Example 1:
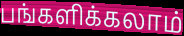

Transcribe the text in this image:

பங்களிக்கலாம்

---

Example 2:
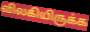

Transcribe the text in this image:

விலகியிருக்க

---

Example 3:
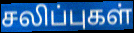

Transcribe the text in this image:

சலிப்புகள்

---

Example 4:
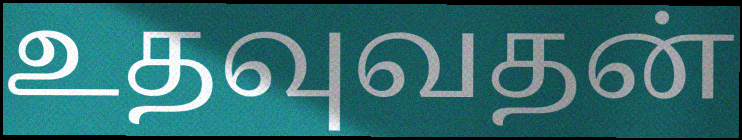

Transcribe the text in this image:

உதவுவதன்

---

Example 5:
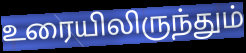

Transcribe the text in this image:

உரையிலிருந்தும்